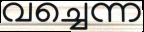
വച്ചെന്ന